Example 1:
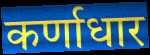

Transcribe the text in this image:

कर्णाधार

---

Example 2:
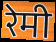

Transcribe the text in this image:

रेमी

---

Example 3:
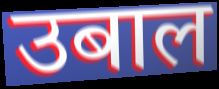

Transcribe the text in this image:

उबाल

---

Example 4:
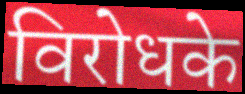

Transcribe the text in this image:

विरोधके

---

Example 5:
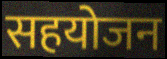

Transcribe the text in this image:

सहयोजन